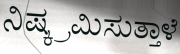
ನಿಷ್ಕ್ರಮಿಸುತ್ತಾಳೆ